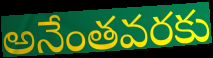
అనేంతవరకు